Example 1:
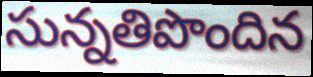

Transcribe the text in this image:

సున్నతిపొందిన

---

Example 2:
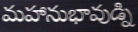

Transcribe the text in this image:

మహానుభావుడ్ని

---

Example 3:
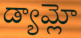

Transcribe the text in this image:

డ్యామ్లో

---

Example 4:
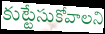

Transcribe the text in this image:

కుట్టేసుకోవాలని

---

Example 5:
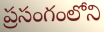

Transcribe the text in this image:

ప్రసంగంలోని